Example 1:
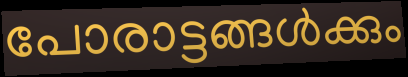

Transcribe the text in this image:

പോരാട്ടങ്ങൾക്കും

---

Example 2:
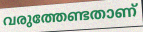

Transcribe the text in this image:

വരുത്തേണ്ടതാണ്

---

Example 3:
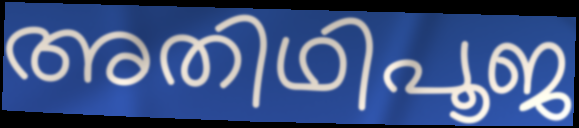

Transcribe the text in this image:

അതിഥിപൂജ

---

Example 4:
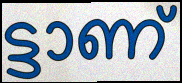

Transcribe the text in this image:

ട്ടാണ്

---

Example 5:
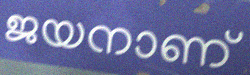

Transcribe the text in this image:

ജയനാണ്